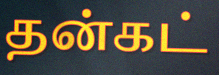
தன்கட்